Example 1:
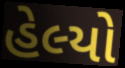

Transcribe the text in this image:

હેલ્યો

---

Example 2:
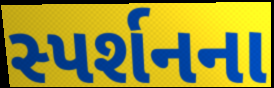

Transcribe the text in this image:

સ્પર્શનના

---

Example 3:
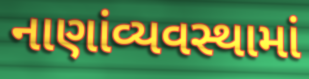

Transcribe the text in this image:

નાણાંવ્યવસ્થામાં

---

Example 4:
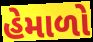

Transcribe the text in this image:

હેમાળો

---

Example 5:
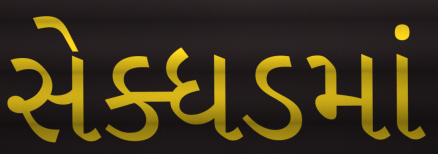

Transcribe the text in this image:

સેક્ધડમાં